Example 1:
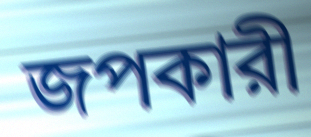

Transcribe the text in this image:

জপকারী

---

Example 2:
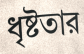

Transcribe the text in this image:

ধৃষ্টতার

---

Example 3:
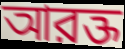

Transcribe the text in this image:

আরক্ত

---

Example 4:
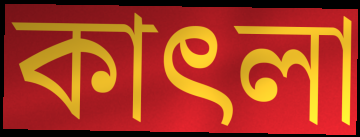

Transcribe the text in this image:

কাৎলা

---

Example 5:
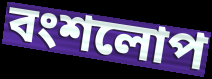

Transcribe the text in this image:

বংশলোপ